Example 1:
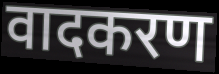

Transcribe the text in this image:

वादकरण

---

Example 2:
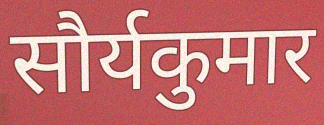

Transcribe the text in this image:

सौर्यकुमार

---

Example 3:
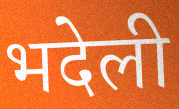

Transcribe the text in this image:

भदेली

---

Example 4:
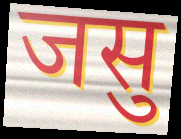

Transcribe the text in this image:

जसु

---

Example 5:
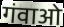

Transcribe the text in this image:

गंवाओ